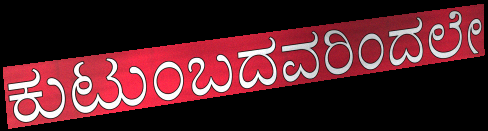
ಕುಟುಂಬದವರಿಂದಲೇ